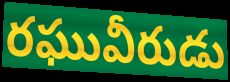
రఘువీరుడు